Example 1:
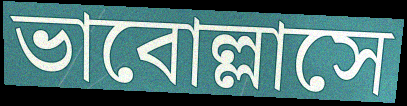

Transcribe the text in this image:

ভাবোল্লাসে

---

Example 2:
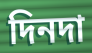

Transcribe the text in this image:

দিনদা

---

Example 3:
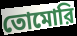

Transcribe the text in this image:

তোমোরি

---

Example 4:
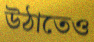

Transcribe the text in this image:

উঠাতেও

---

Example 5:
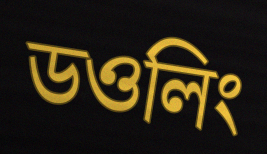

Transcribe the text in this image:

ডওলিং